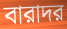
বারাদর